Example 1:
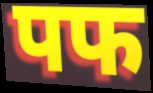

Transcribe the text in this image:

पफ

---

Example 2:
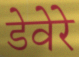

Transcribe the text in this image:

डेवेरे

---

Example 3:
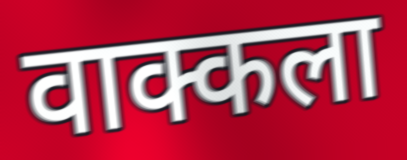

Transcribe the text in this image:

वाक्कला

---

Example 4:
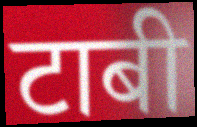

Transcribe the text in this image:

टाबी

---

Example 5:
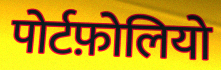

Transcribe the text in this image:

पोर्टफ़ोलियो